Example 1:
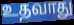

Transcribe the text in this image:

உதவாது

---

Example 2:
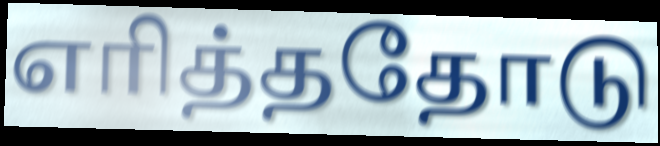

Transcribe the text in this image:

எரித்ததோடு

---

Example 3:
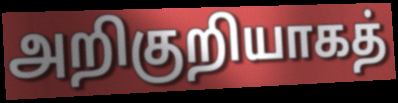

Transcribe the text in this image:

அறிகுறியாகத்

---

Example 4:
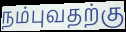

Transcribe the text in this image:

நம்புவதற்கு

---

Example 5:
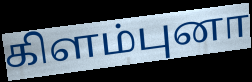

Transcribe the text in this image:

கிளம்புனா